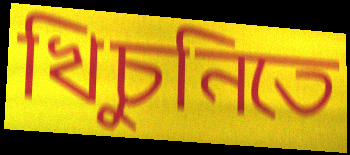
খিচুনিতে